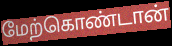
மேற்கொண்டான்